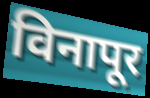
विनापूर